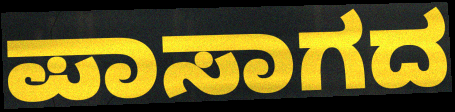
ಪಾಸಾಗದ